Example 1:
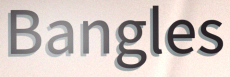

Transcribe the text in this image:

Bangles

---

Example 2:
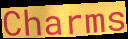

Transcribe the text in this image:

Charms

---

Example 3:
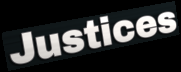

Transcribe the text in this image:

Justices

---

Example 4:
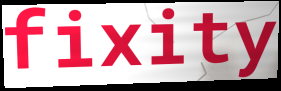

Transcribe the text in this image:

fixity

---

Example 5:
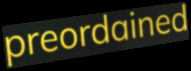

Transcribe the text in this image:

preordained